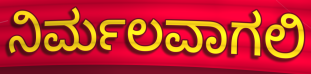
ನಿರ್ಮಲವಾಗಲಿ